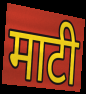
माटी